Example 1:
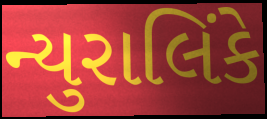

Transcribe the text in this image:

ન્યુરાલિંકે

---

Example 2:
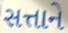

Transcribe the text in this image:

સત્તાને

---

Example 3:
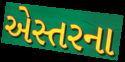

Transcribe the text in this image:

એસ્તરના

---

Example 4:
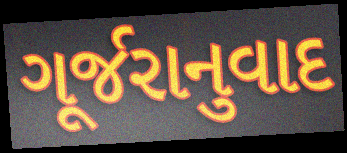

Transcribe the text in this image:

ગૂર્જરાનુવાદ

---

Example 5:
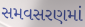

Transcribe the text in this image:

સમવસરણમાં